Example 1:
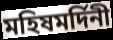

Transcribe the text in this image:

মহিষমর্দিনী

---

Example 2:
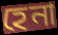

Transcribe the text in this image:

হেনা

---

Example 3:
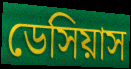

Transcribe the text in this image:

ডেসিয়াস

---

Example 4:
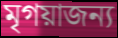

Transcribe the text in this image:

মৃগয়াজন্য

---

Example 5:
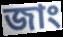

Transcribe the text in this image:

জাং